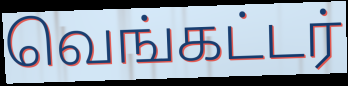
வெங்கட்டர்